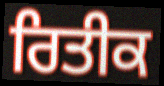
ਰਿਤੀਕ